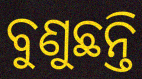
ବୁଣୁଛନ୍ତି